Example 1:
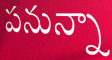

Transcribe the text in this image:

పనున్నా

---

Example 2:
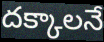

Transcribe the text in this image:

దక్కాలనే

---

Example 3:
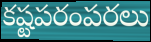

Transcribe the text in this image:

కష్టపరంపరలు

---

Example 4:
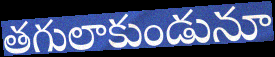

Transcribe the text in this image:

తగులాకుండునూ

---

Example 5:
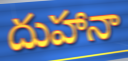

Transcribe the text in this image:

దుహానా